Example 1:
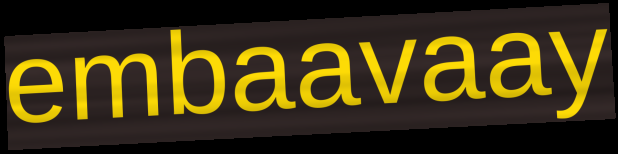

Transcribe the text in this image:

embaavaay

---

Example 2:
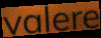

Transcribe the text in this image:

valere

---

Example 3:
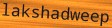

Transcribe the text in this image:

lakshadweep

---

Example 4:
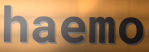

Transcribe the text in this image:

haemo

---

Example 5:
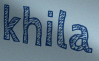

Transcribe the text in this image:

khila